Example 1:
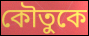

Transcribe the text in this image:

কৌতুকে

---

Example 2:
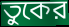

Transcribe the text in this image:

তুকের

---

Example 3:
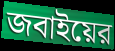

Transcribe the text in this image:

জবাইয়ের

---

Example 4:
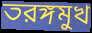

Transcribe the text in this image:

তরঙ্গমুখ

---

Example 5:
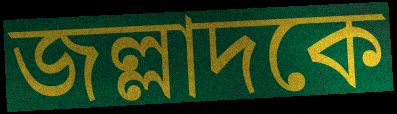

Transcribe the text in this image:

জল্লাদকে